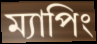
ম্যাপিং